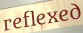
reflexed